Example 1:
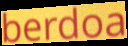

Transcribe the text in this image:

berdoa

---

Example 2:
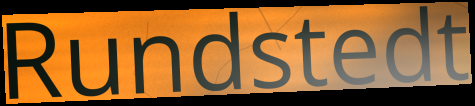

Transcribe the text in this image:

Rundstedt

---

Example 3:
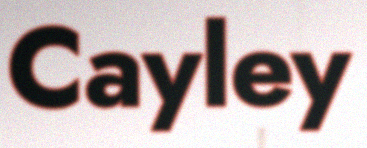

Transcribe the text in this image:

Cayley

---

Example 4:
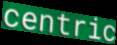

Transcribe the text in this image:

centric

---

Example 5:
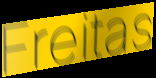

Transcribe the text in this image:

Freitas